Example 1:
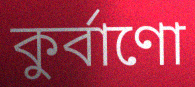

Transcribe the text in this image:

কুর্বাণো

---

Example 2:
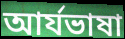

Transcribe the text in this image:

আর্যভাষা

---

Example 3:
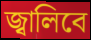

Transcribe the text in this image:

জ্বালিবে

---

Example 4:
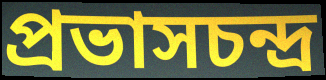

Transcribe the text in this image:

প্রভাসচন্দ্র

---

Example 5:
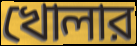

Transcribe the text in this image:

খোলার